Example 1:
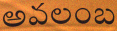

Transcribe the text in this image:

అవలంబ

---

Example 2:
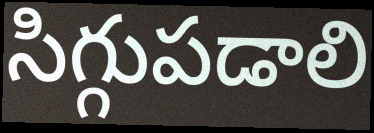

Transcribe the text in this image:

సిగ్గుపడాలి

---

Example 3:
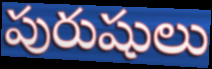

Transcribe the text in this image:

పురుషులు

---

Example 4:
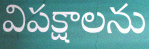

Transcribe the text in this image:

విపక్షాలను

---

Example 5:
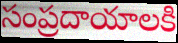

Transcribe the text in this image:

సంప్రదాయాలకి